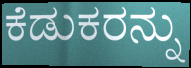
ಕೆಡುಕರನ್ನು